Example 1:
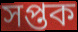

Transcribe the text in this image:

সপ্তক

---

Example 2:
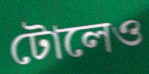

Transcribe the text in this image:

টোলেও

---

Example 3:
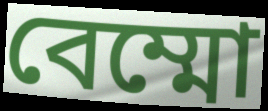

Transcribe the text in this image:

বেম্মো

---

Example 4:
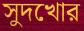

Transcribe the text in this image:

সুদখোর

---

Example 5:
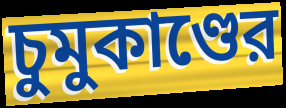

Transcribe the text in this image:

চুমুকাণ্ডের